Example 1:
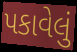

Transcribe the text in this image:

પકાવેલું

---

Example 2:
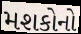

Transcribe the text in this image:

મશકોનો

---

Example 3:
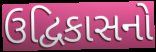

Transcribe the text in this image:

ઉદ્વિકાસનો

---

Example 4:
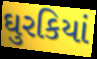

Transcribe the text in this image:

ઘુરકિયાં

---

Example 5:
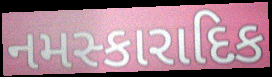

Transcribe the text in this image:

નમસ્કારાદિક